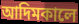
আদিমকালে